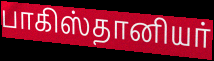
பாகிஸ்தானியர்